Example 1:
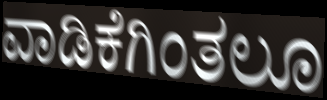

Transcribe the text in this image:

ವಾಡಿಕೆಗಿಂತಲೂ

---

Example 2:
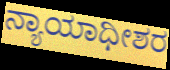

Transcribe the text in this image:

ನ್ಯಾಯಾಧೀಶರ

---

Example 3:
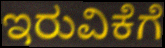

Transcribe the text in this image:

ಇರುವಿಕೆಗೆ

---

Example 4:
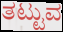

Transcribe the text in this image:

ತಟ್ಟುವ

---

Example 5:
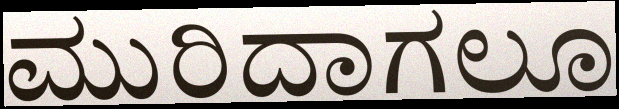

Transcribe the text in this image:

ಮುರಿದಾಗಲೂ